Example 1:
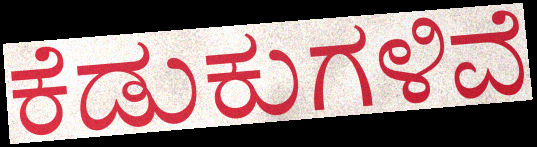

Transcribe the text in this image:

ಕೆಡುಕುಗಳಿವೆ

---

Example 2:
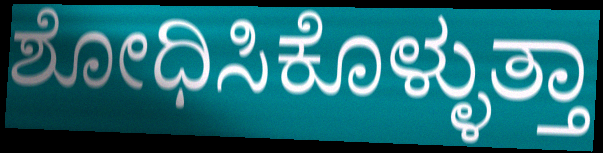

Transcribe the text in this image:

ಶೋಧಿಸಿಕೊಳ್ಳುತ್ತಾ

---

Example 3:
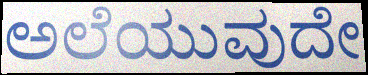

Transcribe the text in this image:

ಅಲೆಯುವುದೇ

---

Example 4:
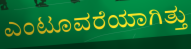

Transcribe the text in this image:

ಎಂಟೂವರೆಯಾಗಿತ್ತು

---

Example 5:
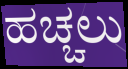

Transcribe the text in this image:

ಹಚ್ಚಲು